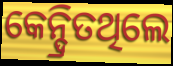
କେନ୍ଦ୍ରିତଥିଲେ